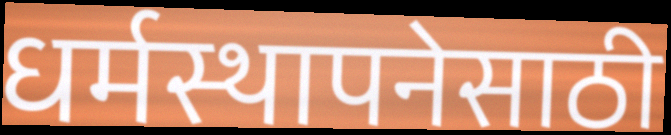
धर्मस्थापनेसाठी